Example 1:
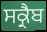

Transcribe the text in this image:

ਸਕ੍ਰੈਬ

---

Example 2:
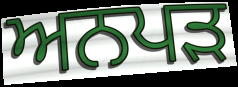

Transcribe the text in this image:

ਅਨਪੜ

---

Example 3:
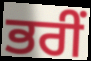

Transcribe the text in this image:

ਭਰੀਂ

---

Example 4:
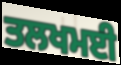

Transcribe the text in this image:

ਤਲਖਮਈ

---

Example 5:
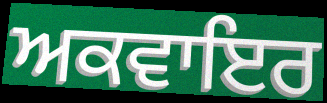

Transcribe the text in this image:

ਅਕਵਾਇਰ